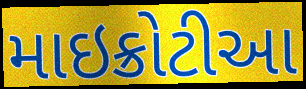
માઇક્રોટીઆ